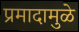
प्रमादामुळे